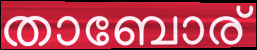
താബോര്